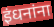
इंधनांना